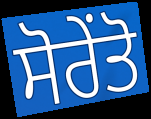
ਸੋਰੇਂਤੋ